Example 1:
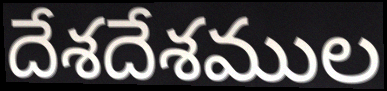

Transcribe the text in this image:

దేశదేశముల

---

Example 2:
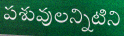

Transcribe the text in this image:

పశువులన్నిటిని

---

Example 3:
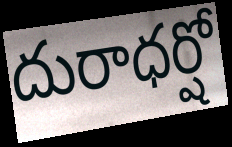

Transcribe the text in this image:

దురాధర్షో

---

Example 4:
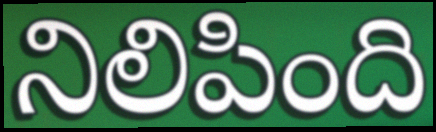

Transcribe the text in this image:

నిలిపింది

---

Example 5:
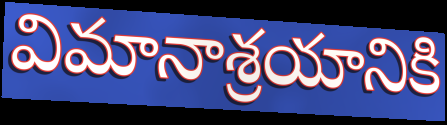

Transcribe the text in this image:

విమానాశ్రయానికి